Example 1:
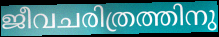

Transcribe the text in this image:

ജീവചരിത്രത്തിനു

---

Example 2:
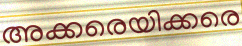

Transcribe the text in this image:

അക്കരെയിക്കരെ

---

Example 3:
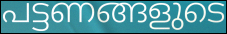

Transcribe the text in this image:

പട്ടണങ്ങളുടെ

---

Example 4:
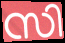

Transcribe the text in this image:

സി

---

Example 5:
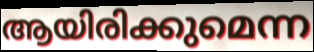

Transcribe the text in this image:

ആയിരിക്കുമെന്ന